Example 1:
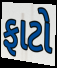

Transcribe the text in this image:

ફાટો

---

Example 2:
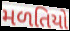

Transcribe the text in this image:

મળતિયો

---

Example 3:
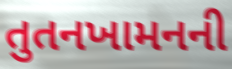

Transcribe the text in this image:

તુતનખામનની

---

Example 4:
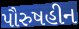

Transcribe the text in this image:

પૌરુષહીન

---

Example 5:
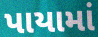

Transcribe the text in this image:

પાયામાં